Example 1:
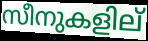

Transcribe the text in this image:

സീനുകളില്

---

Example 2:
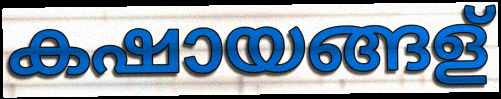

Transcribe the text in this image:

കഷായങ്ങള്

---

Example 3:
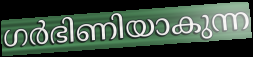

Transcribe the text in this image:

ഗർഭിണിയാകുന്ന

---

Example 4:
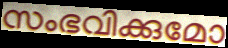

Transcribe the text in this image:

സംഭവിക്കുമോ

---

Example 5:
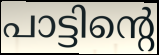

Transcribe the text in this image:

പാട്ടിന്റെ